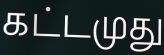
கட்டமுது